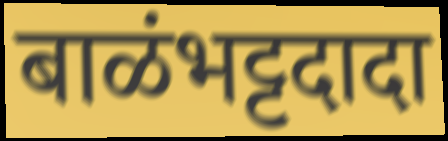
बाळंभट्टदादा